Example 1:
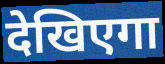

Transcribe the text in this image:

देखिएगा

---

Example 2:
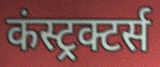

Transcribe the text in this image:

कंस्ट्रक्टर्स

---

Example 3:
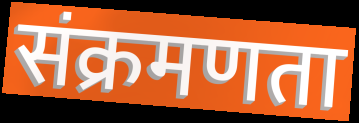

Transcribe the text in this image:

संक्रमणता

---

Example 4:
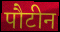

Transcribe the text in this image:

पौटीन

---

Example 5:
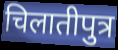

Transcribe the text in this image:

चिलातीपुत्र